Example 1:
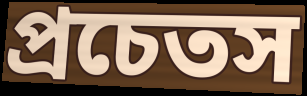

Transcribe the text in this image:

প্রচেতস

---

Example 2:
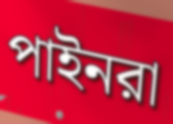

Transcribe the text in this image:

পাইনরা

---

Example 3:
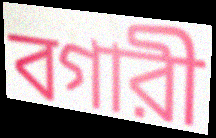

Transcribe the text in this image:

বগারী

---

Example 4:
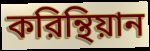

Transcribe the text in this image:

করিন্থিয়ান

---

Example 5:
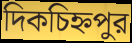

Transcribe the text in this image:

দিকচিহ্নপুর